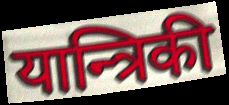
यान्त्रिकी